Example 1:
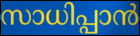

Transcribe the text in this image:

സാധിപ്പാൻ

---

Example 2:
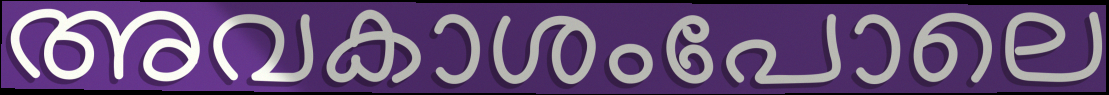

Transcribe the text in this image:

അവകാശംപോലെ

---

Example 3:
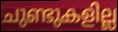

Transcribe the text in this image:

ചുണ്ടുകളില്ല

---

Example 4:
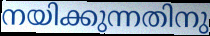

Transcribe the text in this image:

നയിക്കുന്നതിനു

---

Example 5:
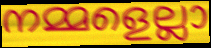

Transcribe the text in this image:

നമ്മളെല്ലാ